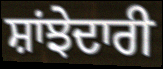
ਸ਼ਾਂਝੇਦਾਰੀ